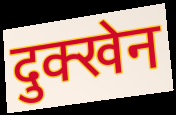
दुक्खेन